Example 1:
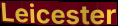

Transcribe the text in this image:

Leicester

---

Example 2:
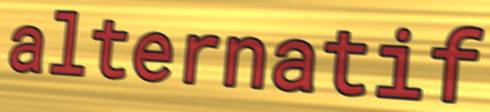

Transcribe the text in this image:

alternatif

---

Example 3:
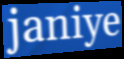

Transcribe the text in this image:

janiye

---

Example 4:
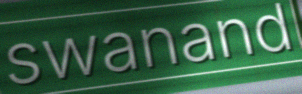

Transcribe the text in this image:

swanand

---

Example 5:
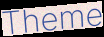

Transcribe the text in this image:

Theme